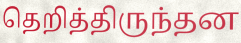
தெறித்திருந்தன